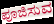
ಪೂಜಿಸುವ